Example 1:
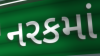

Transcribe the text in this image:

નરકમાં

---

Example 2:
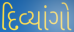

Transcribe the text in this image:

દિવ્યાંગો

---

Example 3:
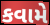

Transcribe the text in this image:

કવામે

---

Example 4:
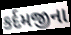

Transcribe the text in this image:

કર્દમજીના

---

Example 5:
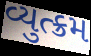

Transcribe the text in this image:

વ્યુત્ક્રમ